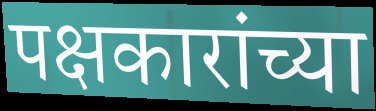
पक्षकारांच्या